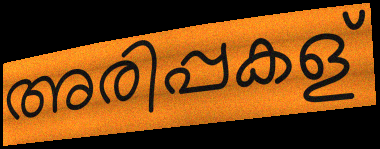
അരിപ്പകള്